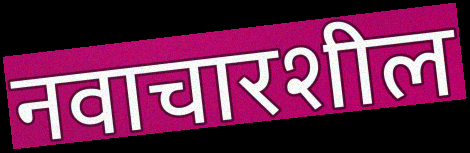
नवाचारशील